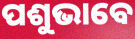
ପଶୁଭାବେ